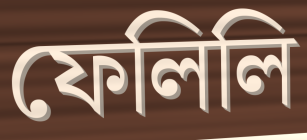
ফেলিলি